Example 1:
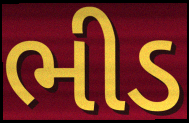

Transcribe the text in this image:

ભીડ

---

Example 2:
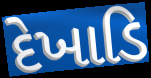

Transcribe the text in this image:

દેખાડિ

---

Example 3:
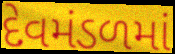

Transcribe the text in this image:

દેવમંડળમાં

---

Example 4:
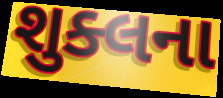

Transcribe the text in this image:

શુક્લના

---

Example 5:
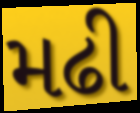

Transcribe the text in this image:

મઢી